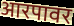
आरपावर